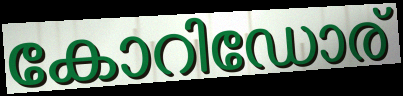
കോറിഡോര്